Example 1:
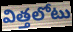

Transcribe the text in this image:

విత్తలోటు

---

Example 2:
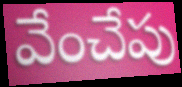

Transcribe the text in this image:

వేంచేపు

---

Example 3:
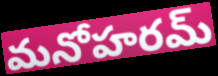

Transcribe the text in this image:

మనోహరమ్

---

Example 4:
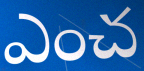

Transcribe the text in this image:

ఎంచ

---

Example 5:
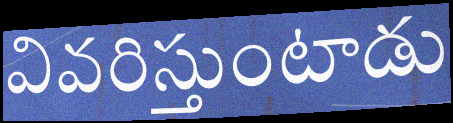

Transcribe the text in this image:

వివరిస్తుంటాడు